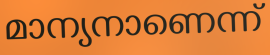
മാന്യനാണെന്ന്